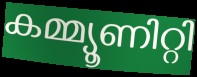
കമ്മ്യൂണിറ്റി